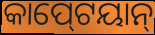
କାପ୍‍ଟେୟାନ୍